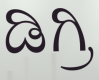
ಡಿಗ್ರಿ